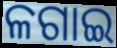
ଳଗାଇ